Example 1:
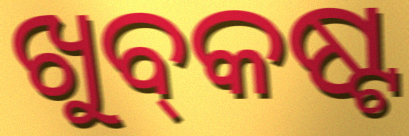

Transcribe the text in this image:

ଖୁବ୍‌କଷ୍ଟ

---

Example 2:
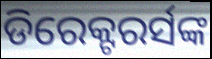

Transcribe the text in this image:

ଡିରେକ୍ଟରର୍ସଙ୍କ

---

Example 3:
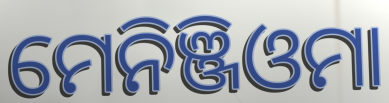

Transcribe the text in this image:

ମେନିଞ୍ଜିଓମା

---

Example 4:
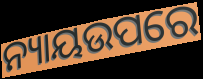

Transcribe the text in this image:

ନ୍ୟାୟଉପରେ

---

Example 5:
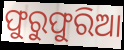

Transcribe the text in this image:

ଫୁରୁଫୁରିଆ